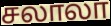
சலாலா